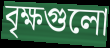
বৃক্ষগুলো